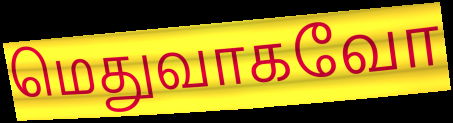
மெதுவாகவோ